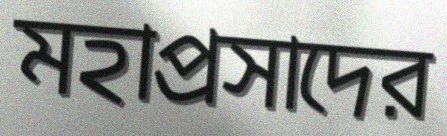
মহাপ্রসাদের